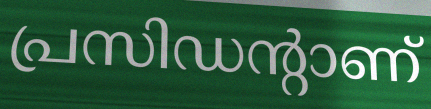
പ്രസിഡന്റാണ്